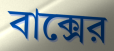
বাক্সের